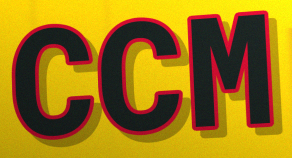
CCM